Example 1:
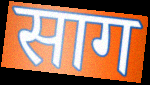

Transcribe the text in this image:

साग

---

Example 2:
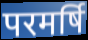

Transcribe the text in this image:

परमर्षि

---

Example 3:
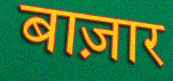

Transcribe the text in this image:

बाज़ार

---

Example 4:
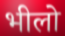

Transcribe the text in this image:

भीलो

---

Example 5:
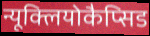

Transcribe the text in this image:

न्यूक्लियोकैप्सिड